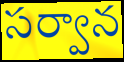
సర్వాన